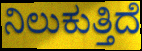
ನಿಲುಕುತ್ತಿದೆ